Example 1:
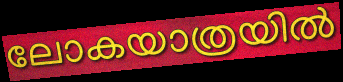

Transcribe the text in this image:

ലോകയാത്രയിൽ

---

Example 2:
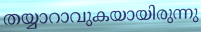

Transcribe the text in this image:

തയ്യാറാവുകയായിരുന്നു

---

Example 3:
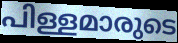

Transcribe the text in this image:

പിള്ളമാരുടെ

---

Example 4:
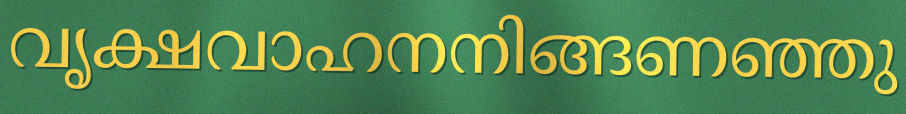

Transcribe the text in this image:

വൃക്ഷവാഹനനിങ്ങണഞ്ഞു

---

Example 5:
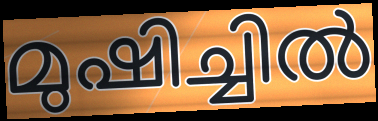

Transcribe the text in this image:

മുഷിച്ചിൽ